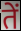
तें